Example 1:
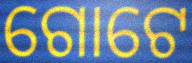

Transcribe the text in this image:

ଗୋଟେ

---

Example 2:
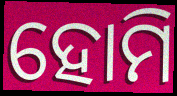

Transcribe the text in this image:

ହୋମି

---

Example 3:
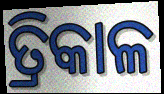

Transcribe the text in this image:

ତ୍ରିକାଳ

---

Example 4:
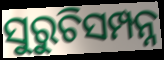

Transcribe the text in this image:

ସୁରୁଚିସମ୍ପନ୍ନ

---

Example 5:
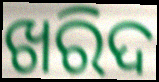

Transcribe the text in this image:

ଖରିଦ